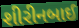
શીરીનબાઈ